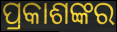
ପ୍ରକାଶଙ୍କର